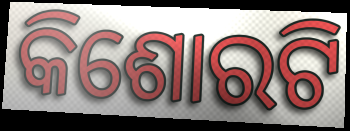
କିଶୋରଟି